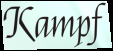
Kampf